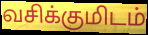
வசிக்குமிடம்